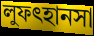
লুফৎহানসা